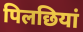
पिलछियां